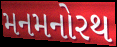
મનમનોરથ